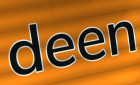
deen